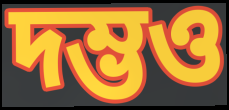
দম্ভও